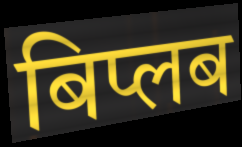
बिप्लब